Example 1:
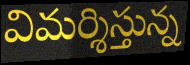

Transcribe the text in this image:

విమర్శిస్తున్న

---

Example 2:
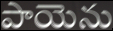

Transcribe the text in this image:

పాయెను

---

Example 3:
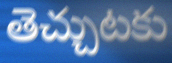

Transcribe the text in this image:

తెచ్చుటకు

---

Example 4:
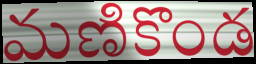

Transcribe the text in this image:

మణికొండ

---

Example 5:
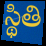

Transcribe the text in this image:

స్థితి